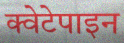
क्वेटेपाइन